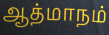
ஆத்மாநம்